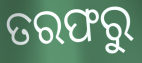
ତରଫରୁ